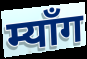
म्याँग